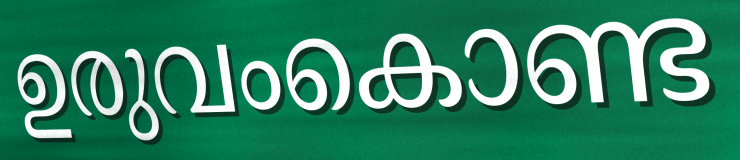
ഉരുവംകൊണ്ട